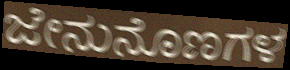
ಜೇನುನೊಣಗಳ